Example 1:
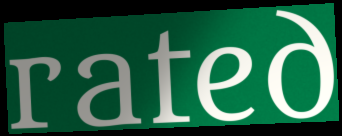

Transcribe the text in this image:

rated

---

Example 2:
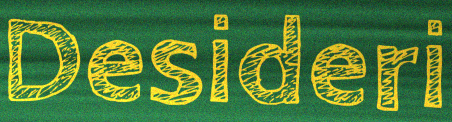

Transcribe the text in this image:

Desideri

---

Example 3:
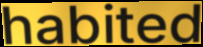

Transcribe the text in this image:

habited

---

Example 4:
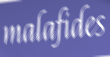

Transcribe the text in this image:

malafides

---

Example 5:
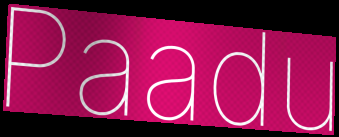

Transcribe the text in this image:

Paadu